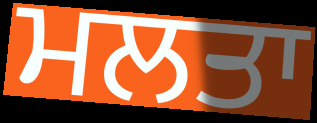
ਮਲਤਾ